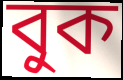
বুক